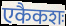
एकैकशः